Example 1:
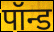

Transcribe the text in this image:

पॉन्ड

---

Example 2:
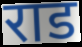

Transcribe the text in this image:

राड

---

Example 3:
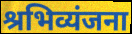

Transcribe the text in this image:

श्रभिव्यंजना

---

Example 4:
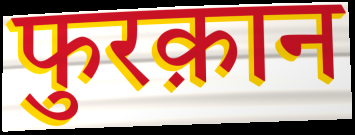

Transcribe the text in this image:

फुरक़ान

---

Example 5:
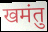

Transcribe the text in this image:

खमंतु